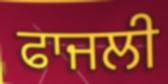
ਫਾਜਲੀ